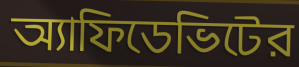
অ্যাফিডেভিটের